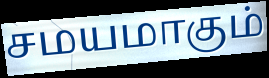
சமயமாகும்